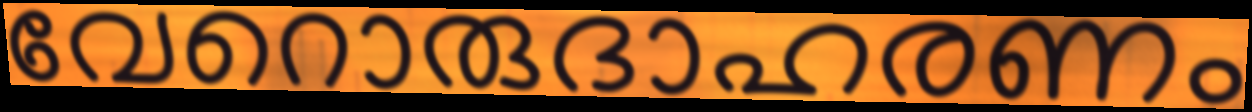
വേറൊരുദാഹരണം